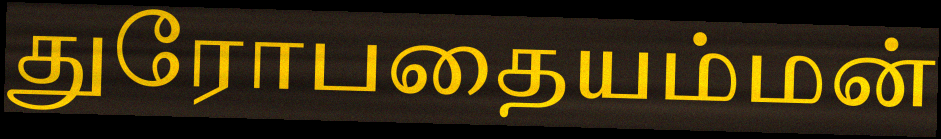
துரோபதையம்மன்